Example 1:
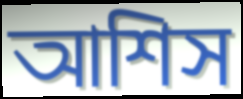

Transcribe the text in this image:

আশিস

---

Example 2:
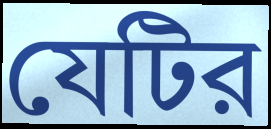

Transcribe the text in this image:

যেটির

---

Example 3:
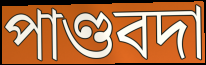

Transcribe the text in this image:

পাণ্ডবদা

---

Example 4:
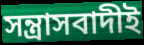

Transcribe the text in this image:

সন্ত্রাসবাদীই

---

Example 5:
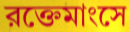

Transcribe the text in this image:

রক্তেমাংসে